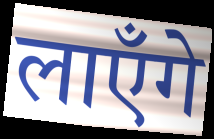
लाएँगे